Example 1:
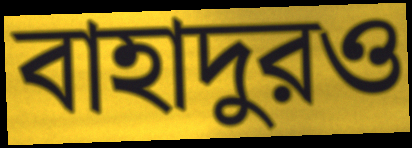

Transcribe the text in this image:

বাহাদুরও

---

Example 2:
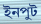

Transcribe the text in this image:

ইনপুট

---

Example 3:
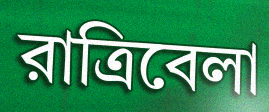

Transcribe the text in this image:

রাত্রিবেলা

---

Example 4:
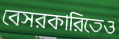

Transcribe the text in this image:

বেসরকারিতেও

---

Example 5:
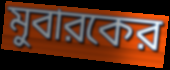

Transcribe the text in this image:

মুবারকের